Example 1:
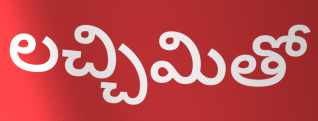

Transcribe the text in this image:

లచ్చిమితో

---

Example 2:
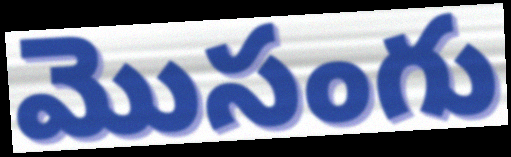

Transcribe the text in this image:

మొసంగు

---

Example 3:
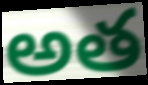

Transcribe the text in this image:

అత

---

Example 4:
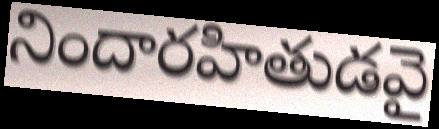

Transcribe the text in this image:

నిందారహితుడవై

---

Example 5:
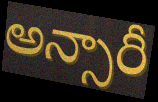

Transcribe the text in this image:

అన్సారీ